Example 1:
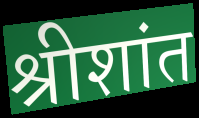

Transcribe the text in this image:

श्रीशांत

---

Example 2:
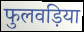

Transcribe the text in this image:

फुलवड़िया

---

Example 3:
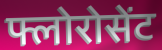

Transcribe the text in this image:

फ्लोरोसेंट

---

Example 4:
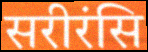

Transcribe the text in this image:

सरीरंसि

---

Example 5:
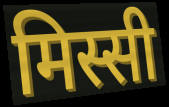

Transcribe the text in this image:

मिस्सी